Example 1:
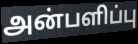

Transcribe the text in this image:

அன்பளிப்பு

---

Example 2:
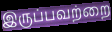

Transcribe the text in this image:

இருப்பவற்றை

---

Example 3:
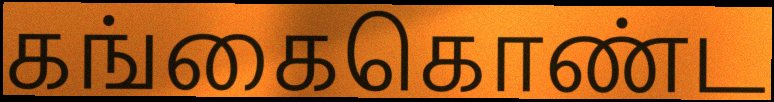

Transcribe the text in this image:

கங்கைகொண்ட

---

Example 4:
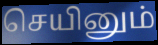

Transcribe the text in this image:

செயினும்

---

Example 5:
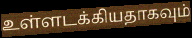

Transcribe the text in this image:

உள்ளடக்கியதாகவும்